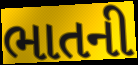
ભાતની